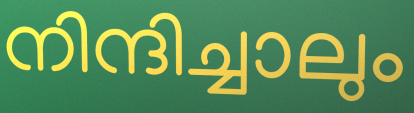
നിന്ദിച്ചാലും